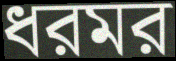
ধরমর